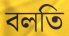
বলতি